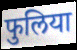
फुलिया